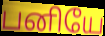
பனியே